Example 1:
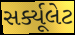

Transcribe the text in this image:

સર્ક્યૂલેટ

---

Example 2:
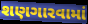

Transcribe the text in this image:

શણગારવામાં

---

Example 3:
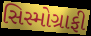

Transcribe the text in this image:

સિસ્મોગ્રાફી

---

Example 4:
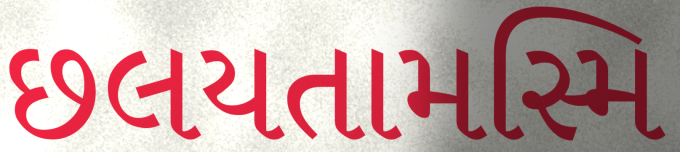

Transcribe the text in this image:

છલયતામસ્મિ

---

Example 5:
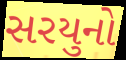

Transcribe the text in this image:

સરયુનો